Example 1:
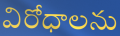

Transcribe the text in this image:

విరోధాలను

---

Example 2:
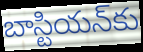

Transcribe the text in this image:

బాస్టియన్‌కు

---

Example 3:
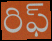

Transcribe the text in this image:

రిఫ్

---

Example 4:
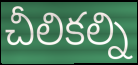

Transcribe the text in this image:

చీలికల్ని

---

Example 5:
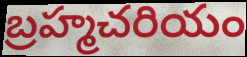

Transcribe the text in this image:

బ్రహ్మచరియం